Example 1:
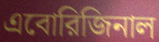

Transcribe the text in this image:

এবোরিজিনাল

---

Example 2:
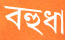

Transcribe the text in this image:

বহুধা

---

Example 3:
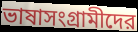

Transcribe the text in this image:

ভাষাসংগ্রামীদের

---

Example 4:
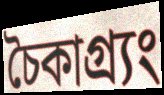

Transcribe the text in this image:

চৈকাগ্র্যং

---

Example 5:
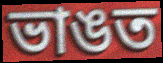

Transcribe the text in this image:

ভাঙত